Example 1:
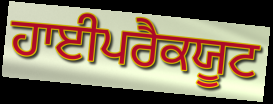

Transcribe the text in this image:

ਹਾਈਪਰੈਕਯੂਟ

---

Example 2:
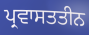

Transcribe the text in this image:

ਪ੍ਰਵਾਸਤਤੀਨ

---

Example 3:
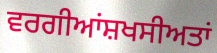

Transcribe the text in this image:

ਵਰਗੀਆਂਸ਼ਖਸੀਅਤਾਂ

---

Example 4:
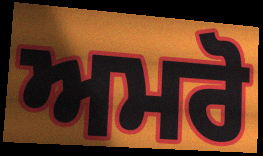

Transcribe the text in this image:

ਅਮਰੋ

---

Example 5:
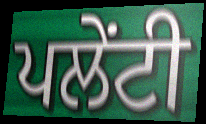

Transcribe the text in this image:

ਪਲੇਂਟੀ